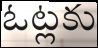
ఓట్లకు